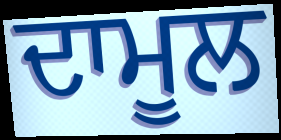
ਦਾਮੂਲ